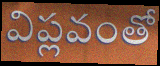
విప్లవంతో